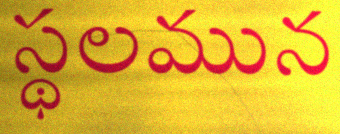
స్థలమున